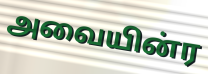
அவையின்ர